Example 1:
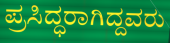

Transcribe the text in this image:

ಪ್ರಸಿದ್ಧರಾಗಿದ್ದವರು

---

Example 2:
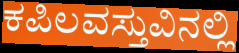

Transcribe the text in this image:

ಕಪಿಲವಸ್ತುವಿನಲ್ಲಿ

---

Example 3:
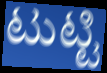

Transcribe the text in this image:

ಟುಟ್ಟಿ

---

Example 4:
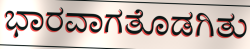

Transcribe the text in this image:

ಭಾರವಾಗತೊಡಗಿತು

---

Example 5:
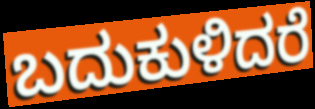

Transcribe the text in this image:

ಬದುಕುಳಿದರೆ